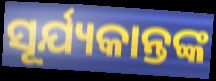
ସୂର୍ଯ୍ୟକାନ୍ତଙ୍କ